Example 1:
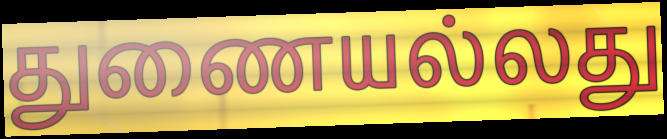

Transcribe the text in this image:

துணையல்லது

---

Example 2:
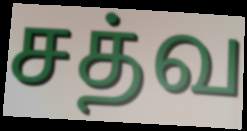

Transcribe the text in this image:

சத்வ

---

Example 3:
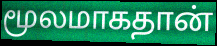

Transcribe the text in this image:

மூலமாகதான்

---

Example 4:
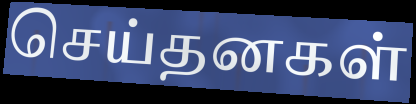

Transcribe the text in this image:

செய்தனகள்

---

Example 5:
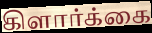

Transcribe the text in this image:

கிளார்க்கை